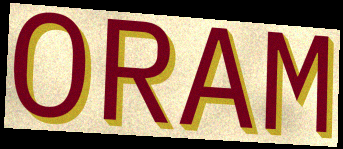
ORAM